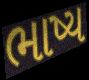
ભાષ્ય